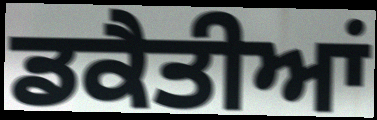
ਡਕੈਤੀਆਂ